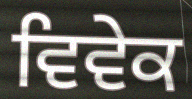
ਵਿਵੇਕ